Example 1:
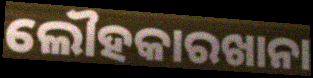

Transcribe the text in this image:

ଲୌହକାରଖାନା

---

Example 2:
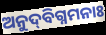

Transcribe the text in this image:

ଅନୁଦ୍‌ବିଗ୍ନମନାଃ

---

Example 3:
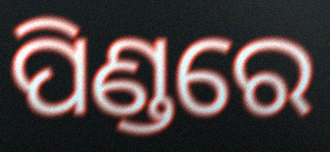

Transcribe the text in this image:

ପିଣ୍ଡରେ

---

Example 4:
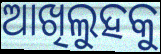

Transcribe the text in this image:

ଆଖିଲୁହକୁ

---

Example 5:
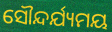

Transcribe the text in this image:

ସୌନ୍ଦର୍ଯ୍ୟମୟ